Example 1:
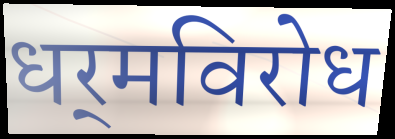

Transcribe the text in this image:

धर्मविरोध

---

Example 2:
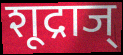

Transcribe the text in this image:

शूद्राज्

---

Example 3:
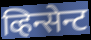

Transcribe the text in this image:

व्हिन्सेन्ट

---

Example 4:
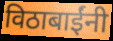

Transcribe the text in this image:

विठाबाईंनी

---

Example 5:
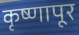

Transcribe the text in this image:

कृष्णापूर